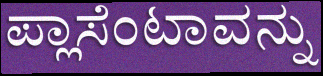
ಪ್ಲಾಸೆಂಟಾವನ್ನು